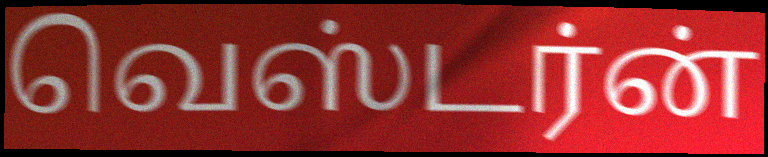
வெஸ்டர்ன்